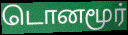
டொனமூர்